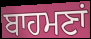
ਬਾਹਮਣਾਂ